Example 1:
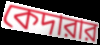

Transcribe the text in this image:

কেদারার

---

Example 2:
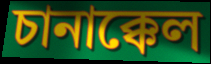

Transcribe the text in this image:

চানাক্কেল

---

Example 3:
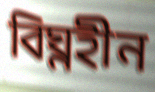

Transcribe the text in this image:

বিঘ্নহীন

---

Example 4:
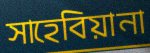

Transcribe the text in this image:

সাহেবিয়ানা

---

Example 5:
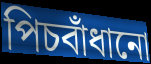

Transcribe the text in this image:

পিচবাঁধানো